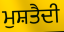
ਮੁਸ਼ਤੈਦੀ